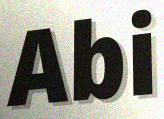
Abi